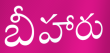
బీహారు